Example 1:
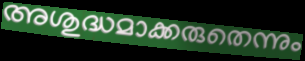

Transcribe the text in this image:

അശുദ്ധമാക്കരുതെന്നും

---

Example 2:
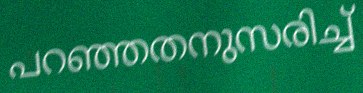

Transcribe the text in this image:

പറഞ്ഞതനുസരിച്ച്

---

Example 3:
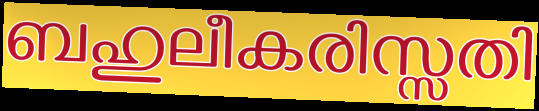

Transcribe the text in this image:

ബഹുലീകരിസ്സതി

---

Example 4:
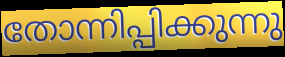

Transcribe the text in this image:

തോന്നിപ്പിക്കുന്നു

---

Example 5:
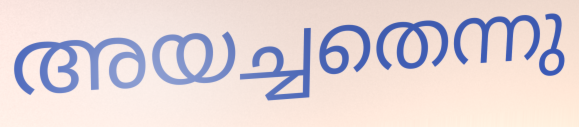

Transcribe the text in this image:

അയച്ചതെന്നു